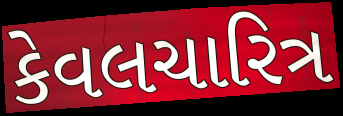
કેવલચારિત્ર